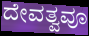
ದೇವತ್ವವೂ